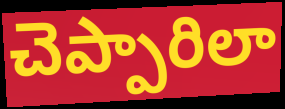
చెప్పారిలా